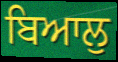
ਬਿਆਲੁ